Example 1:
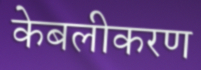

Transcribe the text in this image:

केबलीकरण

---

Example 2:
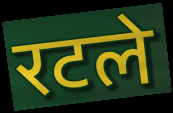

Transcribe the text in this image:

रटले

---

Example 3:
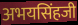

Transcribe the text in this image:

अभयसिंहजी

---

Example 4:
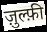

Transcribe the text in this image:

ज़ुल्फ़ी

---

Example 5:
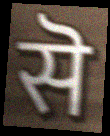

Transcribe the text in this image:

सॆ